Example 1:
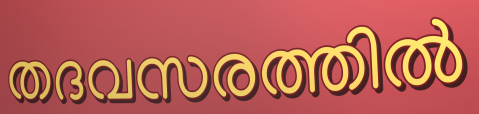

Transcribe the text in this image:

തദവസരത്തിൽ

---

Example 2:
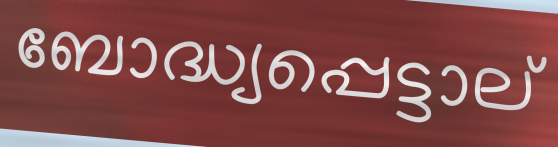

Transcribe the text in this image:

ബോദ്ധ്യപ്പെട്ടാല്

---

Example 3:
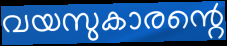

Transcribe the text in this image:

വയസുകാരന്റെ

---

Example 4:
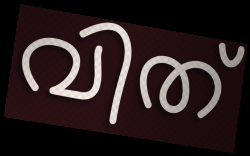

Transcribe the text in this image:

വിത്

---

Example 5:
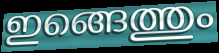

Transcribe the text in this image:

ഇങ്ങെത്തും